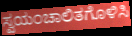
ಸ್ವಯಂಚಾಲಿತಗೊಳಿಸಿ